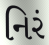
નિરં